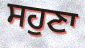
ਸਹੁਣਾ